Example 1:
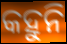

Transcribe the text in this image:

କହୁନି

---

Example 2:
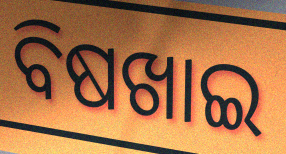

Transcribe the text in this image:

ବିଷଖାଇ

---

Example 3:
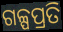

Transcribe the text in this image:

ଗଳ୍ପପ୍ରତି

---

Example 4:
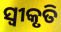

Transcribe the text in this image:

ସ୍ୱୀକୃତି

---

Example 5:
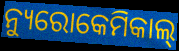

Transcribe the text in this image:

ନ୍ୟୁରୋକେମିକାଲ୍